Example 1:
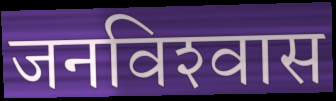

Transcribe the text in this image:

जनविश्वास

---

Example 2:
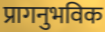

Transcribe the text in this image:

प्रागनुभविक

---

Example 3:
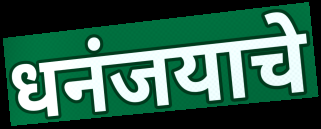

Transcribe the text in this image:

धनंजयाचे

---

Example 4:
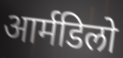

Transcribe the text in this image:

आर्मडिलो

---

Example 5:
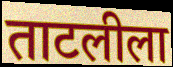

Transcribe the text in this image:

ताटलीला